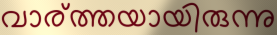
വാര്ത്തയായിരുന്നു